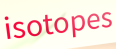
isotopes